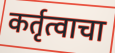
कर्तृत्वाचा